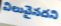
విలువైనదని